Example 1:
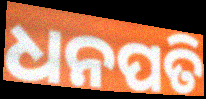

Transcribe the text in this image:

ଧନପତି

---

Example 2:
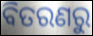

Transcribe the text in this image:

ବିତରଣରୁ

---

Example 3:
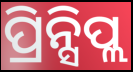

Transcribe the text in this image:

ପ୍ରିନ୍ସିପ୍ଲ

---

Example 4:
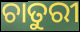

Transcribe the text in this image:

ଚାତୁରୀ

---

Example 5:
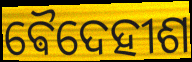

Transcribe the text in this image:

ଵୈଦେହୀଶ